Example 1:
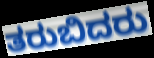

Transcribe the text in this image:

ತರುಬಿದರು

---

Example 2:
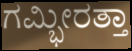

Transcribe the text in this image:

ಗಮ್ಭೀರತ್ತಾ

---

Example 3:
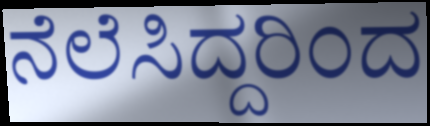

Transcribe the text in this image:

ನೆಲೆಸಿದ್ದರಿಂದ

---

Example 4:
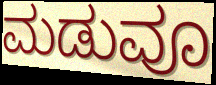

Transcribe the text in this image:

ಮಡುವೂ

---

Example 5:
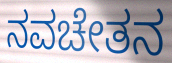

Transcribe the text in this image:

ನವಚೇತನ